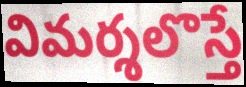
విమర్శలొస్తే